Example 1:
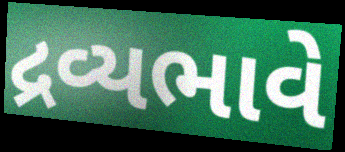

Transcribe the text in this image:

દ્રવ્યભાવે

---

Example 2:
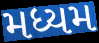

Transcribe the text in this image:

મધ્યમ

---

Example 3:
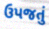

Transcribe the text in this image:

ઉપજતું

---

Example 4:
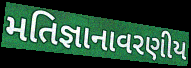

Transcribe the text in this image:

મતિજ્ઞાનાવરણીય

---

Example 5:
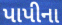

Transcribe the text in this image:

પાપીના